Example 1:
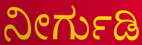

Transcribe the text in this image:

ನೀರ್ಗುಡಿ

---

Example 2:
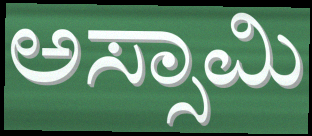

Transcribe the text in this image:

ಅಸ್ಸಾಮಿ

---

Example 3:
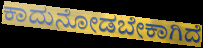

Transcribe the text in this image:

ಕಾದುನೋಡಬೇಕಾಗಿದೆ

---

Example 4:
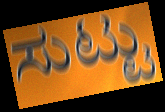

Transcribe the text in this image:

ಸುಟ್ಟು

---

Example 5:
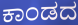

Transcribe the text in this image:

ಕಾಂಡದ